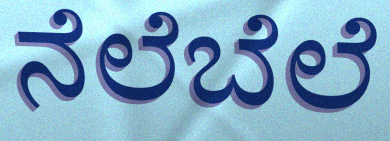
ನೆಲೆಬೆಲೆ